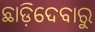
ଛାଡ଼ିଦେବାରୁ